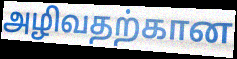
அழிவதற்கான